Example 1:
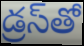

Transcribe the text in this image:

డ్రస్‌తో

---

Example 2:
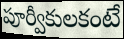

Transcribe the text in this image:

పూర్వీకులకంటే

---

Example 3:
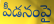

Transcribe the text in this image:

పీడనంపై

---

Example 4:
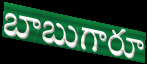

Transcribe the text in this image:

బాబుగారూ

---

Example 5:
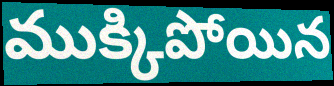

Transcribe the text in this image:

ముక్కిపోయిన